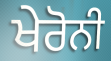
ਖੇਰੋਨੀ